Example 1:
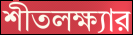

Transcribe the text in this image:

শীতলক্ষ্যার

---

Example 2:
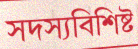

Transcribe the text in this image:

সদস্যবিশিষ্ট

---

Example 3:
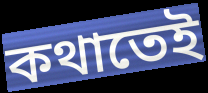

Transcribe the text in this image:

কথাতেই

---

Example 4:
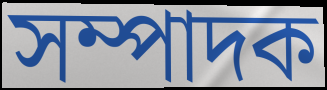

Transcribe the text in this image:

সম্পাদক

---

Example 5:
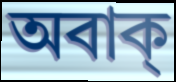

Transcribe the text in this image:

অবাক্